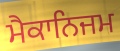
ਮੈਕਾਨਿਜਮ